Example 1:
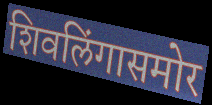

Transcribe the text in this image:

शिवलिंगासमोर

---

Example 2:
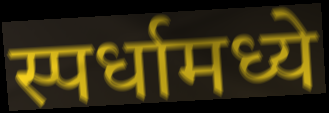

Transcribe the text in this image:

स्पर्धामध्ये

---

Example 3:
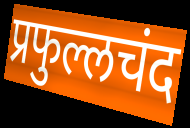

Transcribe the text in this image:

प्रफुल्लचंद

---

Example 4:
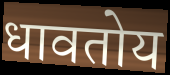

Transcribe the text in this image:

धावतोय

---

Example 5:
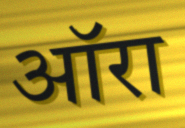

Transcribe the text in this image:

ऑरा